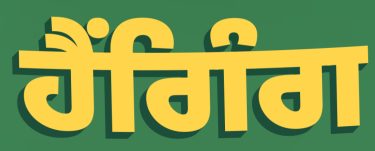
ਹੈਂਗਿੰਗ